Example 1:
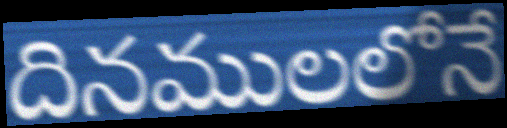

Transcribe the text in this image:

దినములలోనే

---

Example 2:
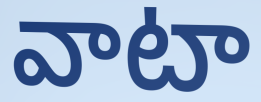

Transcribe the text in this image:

వాటా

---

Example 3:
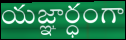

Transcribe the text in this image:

యజ్ఞార్ధంగా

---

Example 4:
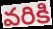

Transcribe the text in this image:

వరికి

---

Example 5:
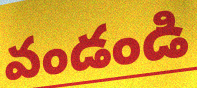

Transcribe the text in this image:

వండండి